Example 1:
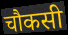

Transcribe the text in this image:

चौकसी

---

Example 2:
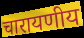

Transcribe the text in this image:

चारायणीय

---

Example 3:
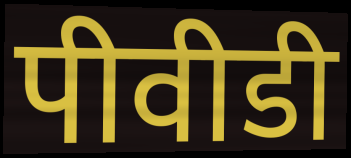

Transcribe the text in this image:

पीवीडी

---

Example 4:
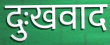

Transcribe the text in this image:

दुःखवाद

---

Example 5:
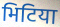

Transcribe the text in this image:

भिटिया